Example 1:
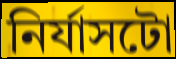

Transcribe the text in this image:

নিৰ্যাসটো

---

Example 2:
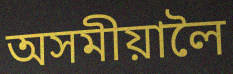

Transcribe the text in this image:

অসমীয়ালৈ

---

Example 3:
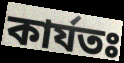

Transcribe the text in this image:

কাৰ্যতঃ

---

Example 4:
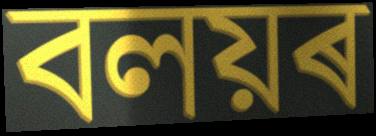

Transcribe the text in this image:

বলয়ৰ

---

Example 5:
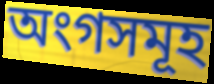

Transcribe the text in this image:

অংগসমূহ